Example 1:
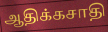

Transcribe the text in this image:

ஆதிக்கசாதி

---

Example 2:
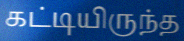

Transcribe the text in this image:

கட்டியிருந்த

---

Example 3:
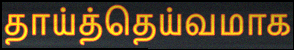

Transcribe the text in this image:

தாய்த்தெய்வமாக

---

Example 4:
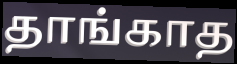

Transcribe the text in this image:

தாங்காத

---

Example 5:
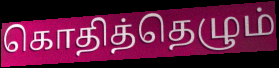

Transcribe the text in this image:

கொதித்தெழும்